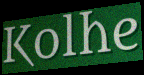
Kolhe